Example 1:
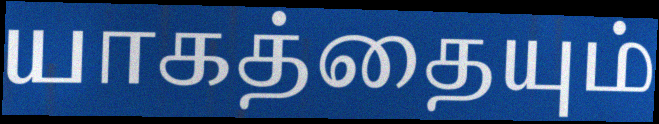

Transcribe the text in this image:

யாகத்தையும்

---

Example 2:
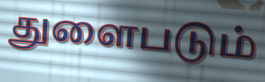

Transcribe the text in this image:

துளைபடும்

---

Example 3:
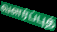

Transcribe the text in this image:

வளர்ப்புத்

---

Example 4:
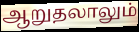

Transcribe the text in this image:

ஆறுதலாலும்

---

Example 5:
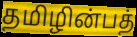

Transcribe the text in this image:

தமிழின்பத்